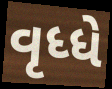
વૃધ્ધે